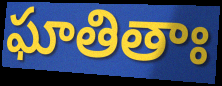
ఘాతితాః